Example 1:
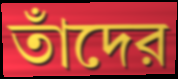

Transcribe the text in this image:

তাঁদের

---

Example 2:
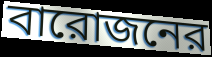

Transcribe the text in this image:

বারোজনের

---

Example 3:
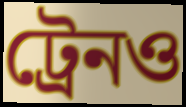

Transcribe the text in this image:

ট্রেনও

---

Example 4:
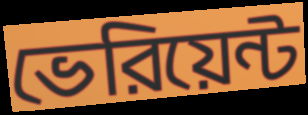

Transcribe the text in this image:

ভেরিয়েন্ট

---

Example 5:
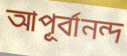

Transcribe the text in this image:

আপূর্বানন্দ